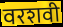
वरशवी